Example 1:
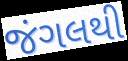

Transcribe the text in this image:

જંગલથી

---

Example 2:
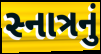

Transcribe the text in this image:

સ્નાત્રનું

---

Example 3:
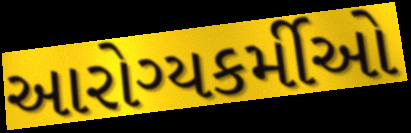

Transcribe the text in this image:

આરોગ્યકર્મીઓ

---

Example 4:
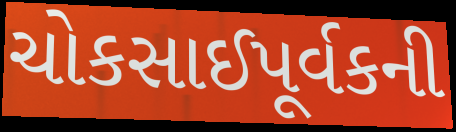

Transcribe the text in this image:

ચોકસાઈપૂર્વકની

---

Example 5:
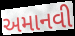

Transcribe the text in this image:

અમાનવી